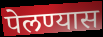
पेलण्यास